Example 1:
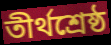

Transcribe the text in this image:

তীর্থশ্রেষ্ঠ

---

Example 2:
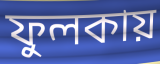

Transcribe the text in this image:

ফুলকায়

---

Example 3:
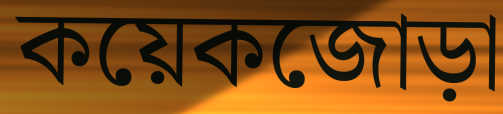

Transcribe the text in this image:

কয়েকজোড়া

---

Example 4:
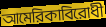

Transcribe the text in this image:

আমেরিকাবিরোধী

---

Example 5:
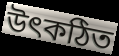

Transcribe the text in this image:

উৎকঠিত